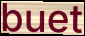
buet